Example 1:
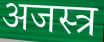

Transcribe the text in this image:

अजस्त्र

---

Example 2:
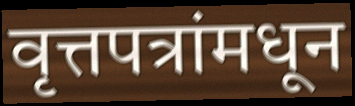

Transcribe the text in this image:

वृत्तपत्रांमधून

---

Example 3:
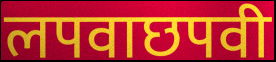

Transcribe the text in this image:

लपवाछपवी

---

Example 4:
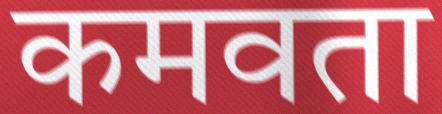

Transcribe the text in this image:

कमवता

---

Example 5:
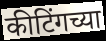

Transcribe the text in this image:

कीटिंगच्या